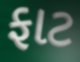
ફાટ